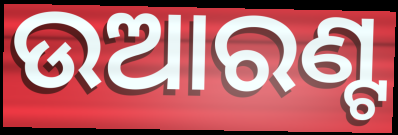
ଉଆରଣ୍ଟ